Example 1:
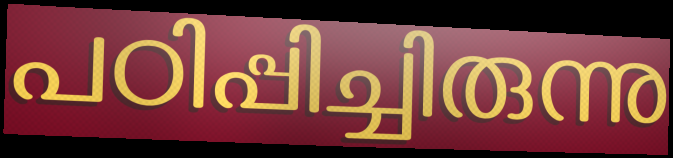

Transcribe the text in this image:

പഠിപ്പിച്ചിരുന്നു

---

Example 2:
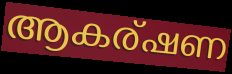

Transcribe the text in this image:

ആകര്ഷണ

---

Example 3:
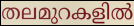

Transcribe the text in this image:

തലമുറകളിൽ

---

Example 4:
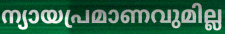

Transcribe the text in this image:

ന്യായപ്രമാണവുമില്ല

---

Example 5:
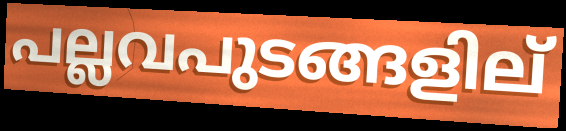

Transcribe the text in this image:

പല്ലവപുടങ്ങളില്